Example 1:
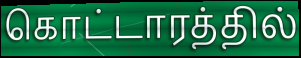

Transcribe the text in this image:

கொட்டாரத்தில்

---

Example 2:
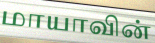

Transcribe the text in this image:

மாயாவின்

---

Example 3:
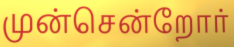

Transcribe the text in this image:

முன்சென்றோர்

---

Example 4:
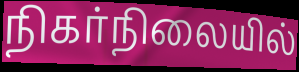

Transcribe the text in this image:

நிகர்நிலையில்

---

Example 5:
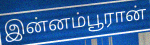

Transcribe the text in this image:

இன்னம்பூரான்